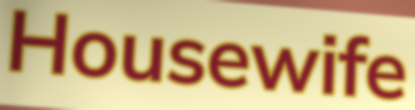
Housewife